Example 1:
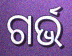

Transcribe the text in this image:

ଗର୍ଭ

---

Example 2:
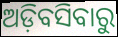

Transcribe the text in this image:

ଅଡ଼ିବସିବାରୁ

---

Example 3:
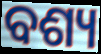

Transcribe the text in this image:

ବଶ୍ୟ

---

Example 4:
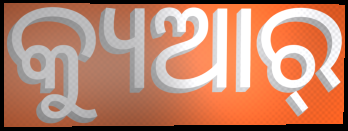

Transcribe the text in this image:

କ୍ୟୁଆର୍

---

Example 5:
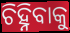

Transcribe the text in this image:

ଚିହ୍ନିବାକୁ